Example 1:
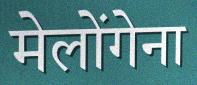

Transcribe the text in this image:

मेलोंगेना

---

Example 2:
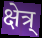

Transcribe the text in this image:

क्षेत्र्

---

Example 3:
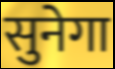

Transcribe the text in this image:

सुनेगा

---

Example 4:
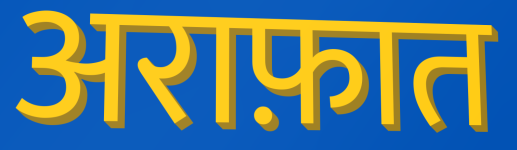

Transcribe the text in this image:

अराफ़ात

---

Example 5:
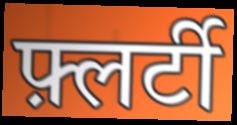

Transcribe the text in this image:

फ़्लर्टी